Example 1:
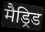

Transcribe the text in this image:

मैड्रिड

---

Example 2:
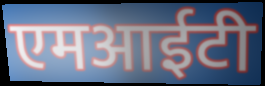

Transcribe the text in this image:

एमआईटी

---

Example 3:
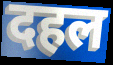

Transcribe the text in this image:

दहल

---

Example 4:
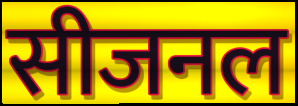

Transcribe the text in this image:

सीजनल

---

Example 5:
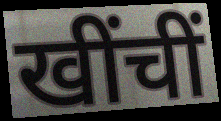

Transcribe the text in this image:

खींचीं